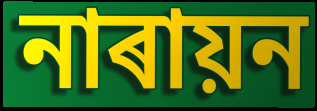
নাৰায়ন